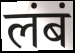
लंबं